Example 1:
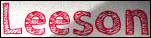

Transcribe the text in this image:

Leeson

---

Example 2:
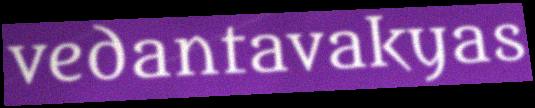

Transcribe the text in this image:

vedantavakyas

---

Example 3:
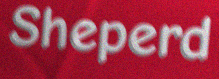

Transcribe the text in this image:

Sheperd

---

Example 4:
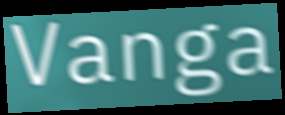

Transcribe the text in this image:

Vanga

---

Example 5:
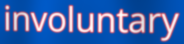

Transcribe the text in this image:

involuntary